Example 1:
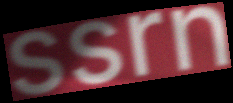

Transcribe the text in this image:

ssrn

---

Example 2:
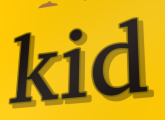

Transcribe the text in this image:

kid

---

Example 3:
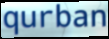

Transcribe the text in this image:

qurban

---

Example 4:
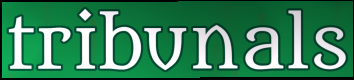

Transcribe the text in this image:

tribunals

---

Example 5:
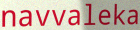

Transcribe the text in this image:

navvaleka